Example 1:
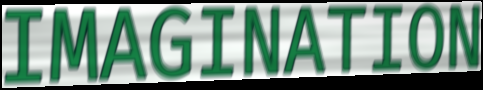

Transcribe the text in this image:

IMAGINATION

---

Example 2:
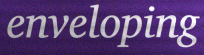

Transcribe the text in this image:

enveloping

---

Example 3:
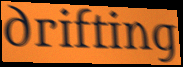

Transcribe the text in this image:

drifting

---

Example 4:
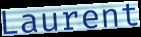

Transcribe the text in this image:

Laurent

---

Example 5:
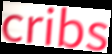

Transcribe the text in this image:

cribs